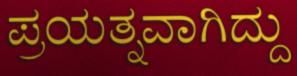
ಪ್ರಯತ್ನವಾಗಿದ್ದು